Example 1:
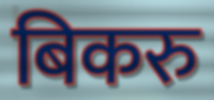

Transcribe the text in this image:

बिकरु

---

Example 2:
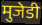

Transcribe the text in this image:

मुजेडी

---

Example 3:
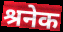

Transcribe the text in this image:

श्रनेक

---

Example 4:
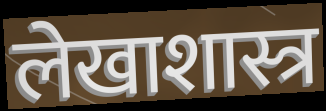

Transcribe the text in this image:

लेखाशास्त्र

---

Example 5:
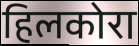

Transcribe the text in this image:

हिलकोरा